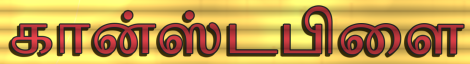
கான்ஸ்டபிளை